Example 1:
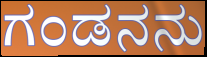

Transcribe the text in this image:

ಗಂಡನನು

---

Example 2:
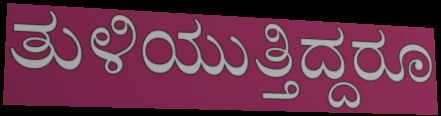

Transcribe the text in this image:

ತುಳಿಯುತ್ತಿದ್ದರೂ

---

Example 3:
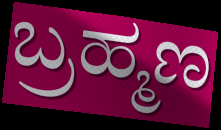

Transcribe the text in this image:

ಬ್ರಹ್ಮಣ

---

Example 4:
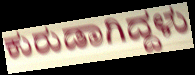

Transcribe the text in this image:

ಕುರುಡಾಗಿದ್ದಳು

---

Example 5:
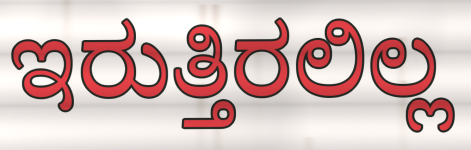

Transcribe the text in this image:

ಇರುತ್ತಿರಲಿಲ್ಲ